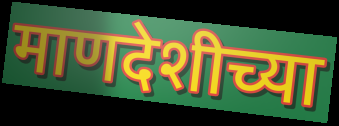
माणदेशीच्या